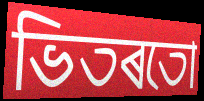
ভিতৰতো